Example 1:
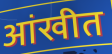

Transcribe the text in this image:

आंखीत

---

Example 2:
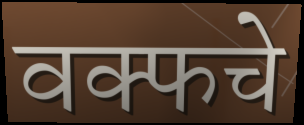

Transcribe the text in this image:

वक्फचे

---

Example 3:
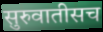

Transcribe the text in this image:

सुरुवातीसच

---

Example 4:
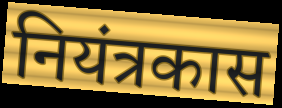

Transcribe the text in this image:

नियंत्रकास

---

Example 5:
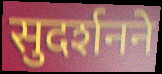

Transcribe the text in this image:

सुदर्शनने